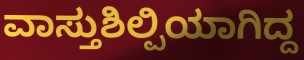
ವಾಸ್ತುಶಿಲ್ಪಿಯಾಗಿದ್ದ